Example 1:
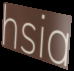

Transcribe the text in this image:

hsia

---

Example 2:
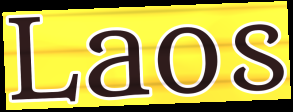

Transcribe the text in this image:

Laos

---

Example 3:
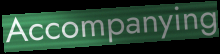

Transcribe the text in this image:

Accompanying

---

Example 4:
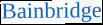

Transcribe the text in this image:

Bainbridge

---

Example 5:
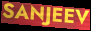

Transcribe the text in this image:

SANJEEV